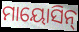
ମାୟୋସିନ୍